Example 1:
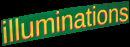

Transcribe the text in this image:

illuminations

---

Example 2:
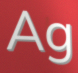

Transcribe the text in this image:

Ag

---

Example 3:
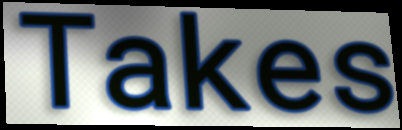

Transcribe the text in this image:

Takes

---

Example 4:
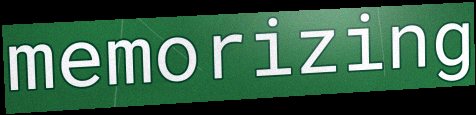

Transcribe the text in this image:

memorizing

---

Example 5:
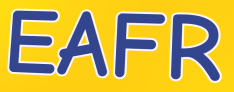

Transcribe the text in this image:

EAFR